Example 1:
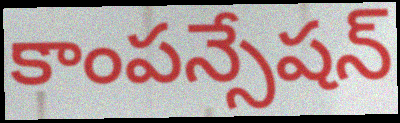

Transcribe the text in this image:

కాంపన్సేషన్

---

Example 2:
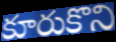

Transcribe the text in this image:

కూరుకొని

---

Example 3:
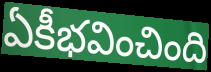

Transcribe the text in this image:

ఏకీభవించింది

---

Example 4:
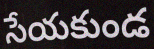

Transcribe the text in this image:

సేయకుండ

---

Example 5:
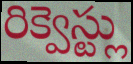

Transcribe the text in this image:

రిక్వెస్ట్లు